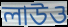
লাউও